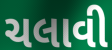
ચલાવી